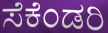
ಸೆಕೆಂಡರಿ